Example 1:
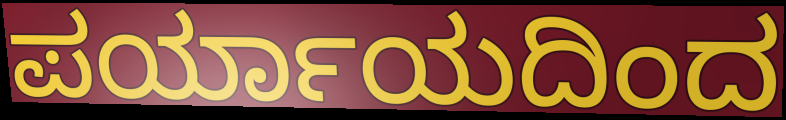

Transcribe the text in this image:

ಪರ್ಯಾಯದಿಂದ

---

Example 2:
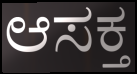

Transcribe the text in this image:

ಆಸಕ್ತ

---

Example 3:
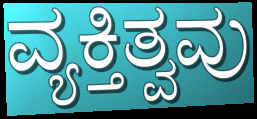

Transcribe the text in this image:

ವ್ಯಕ್ತಿತ್ವವು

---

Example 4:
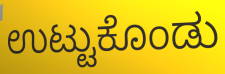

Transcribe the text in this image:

ಉಟ್ಟುಕೊಂಡು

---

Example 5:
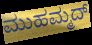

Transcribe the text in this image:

ಮುಹಮ್ಮದ್